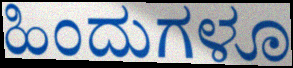
ಹಿಂದುಗಳೂ